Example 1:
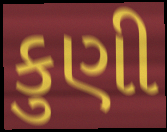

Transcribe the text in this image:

કુણી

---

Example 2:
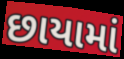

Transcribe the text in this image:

છાયામાં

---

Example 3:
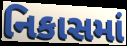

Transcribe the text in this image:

નિકાસમાં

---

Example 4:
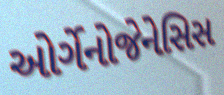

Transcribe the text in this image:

ઓર્ગેનોજેનેસિસ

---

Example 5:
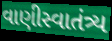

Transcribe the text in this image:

વાણીસ્વાતંત્ર્ય